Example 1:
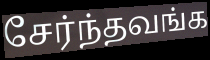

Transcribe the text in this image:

சேர்ந்தவங்க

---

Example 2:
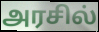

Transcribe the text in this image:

அரசில்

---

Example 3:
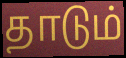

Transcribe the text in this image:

தாடும்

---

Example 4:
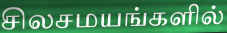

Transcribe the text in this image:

சிலசமயங்களில்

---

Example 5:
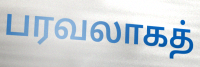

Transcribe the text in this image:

பரவலாகத்